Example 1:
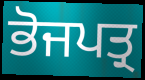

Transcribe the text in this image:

ਭੋਜਪਤ੍ਰ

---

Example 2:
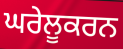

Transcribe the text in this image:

ਘਰੇਲੂਕਰਨ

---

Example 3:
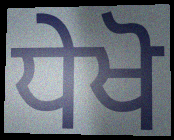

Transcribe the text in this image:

ਧੇਖੋ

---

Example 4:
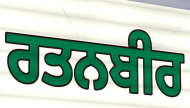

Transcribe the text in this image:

ਰਤਨਬੀਰ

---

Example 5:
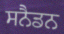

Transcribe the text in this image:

ਸਨੈਡਨ